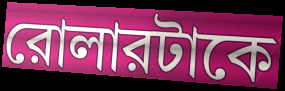
রোলারটাকে